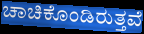
ಚಾಚಿಕೊಂಡಿರುತ್ತವೆ